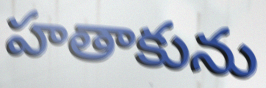
హతాకును